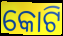
କୋଟି